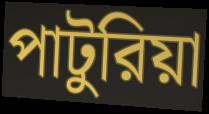
পাটুরিয়া